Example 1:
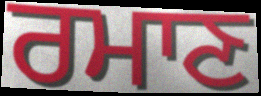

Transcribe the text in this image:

ਰਮਾਣ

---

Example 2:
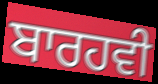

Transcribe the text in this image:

ਬਾਰਹਵੀ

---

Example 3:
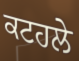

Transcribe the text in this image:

ਕਟਹਲੇ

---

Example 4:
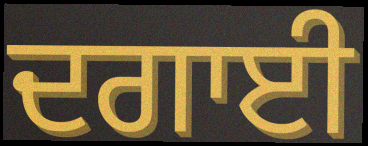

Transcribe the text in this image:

ਦਗਾਈ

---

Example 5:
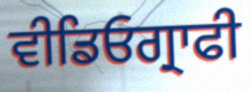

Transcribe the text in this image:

ਵੀਡਿਓਗ੍ਰਾਫੀ